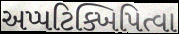
અપ્પટિક્ખિપિત્વા